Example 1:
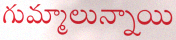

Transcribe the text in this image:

గుమ్మాలున్నాయి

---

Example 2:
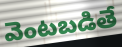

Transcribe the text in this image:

వెంటబడితే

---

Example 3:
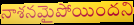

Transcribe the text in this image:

నాశనమైపోయిందని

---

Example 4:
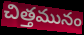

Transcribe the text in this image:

చిత్తమునం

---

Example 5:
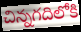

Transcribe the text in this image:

చిన్నగదిలోకి